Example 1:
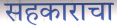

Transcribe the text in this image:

सहकाराचा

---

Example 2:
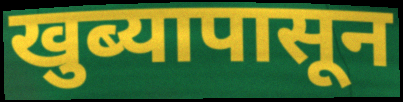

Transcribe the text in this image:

खुब्यापासून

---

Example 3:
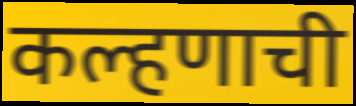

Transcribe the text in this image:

कल्हणाची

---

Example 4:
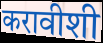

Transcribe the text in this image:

करावीशी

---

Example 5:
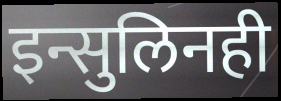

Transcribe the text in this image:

इन्सुलिनही